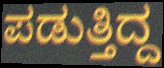
ಪಡುತ್ತಿದ್ದ